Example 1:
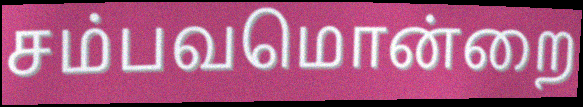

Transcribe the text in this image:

சம்பவமொன்றை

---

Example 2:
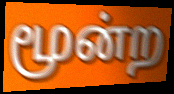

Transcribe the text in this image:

மூன்ற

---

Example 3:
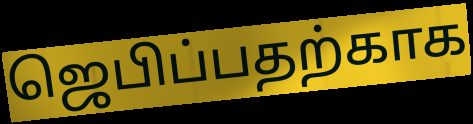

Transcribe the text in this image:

ஜெபிப்பதற்காக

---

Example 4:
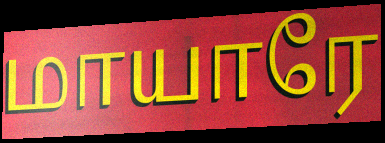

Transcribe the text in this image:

மாயாரே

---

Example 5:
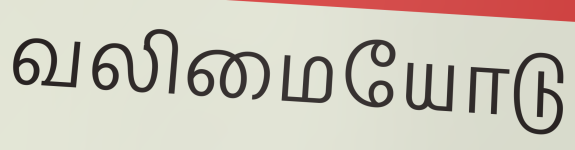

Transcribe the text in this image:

வலிமையோடு